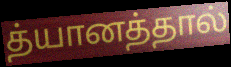
த்யானத்தால்